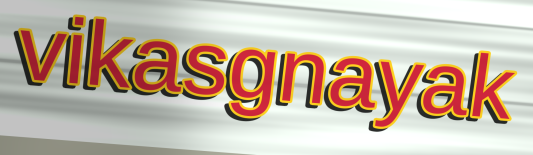
vikasgnayak